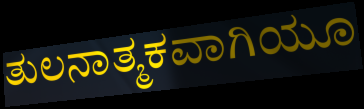
ತುಲನಾತ್ಮಕವಾಗಿಯೂ